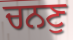
ਚਨਣੁ